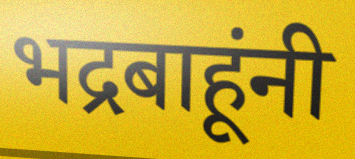
भद्रबाहूंनी